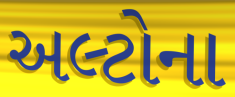
અલ્ટોના